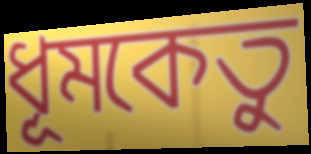
ধূমকেতু